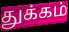
துக்கம்